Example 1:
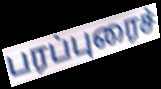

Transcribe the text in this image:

பரப்புரைச்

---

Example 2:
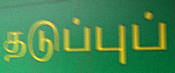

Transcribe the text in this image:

தடுப்புப்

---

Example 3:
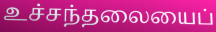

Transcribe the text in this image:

உச்சந்தலையைப்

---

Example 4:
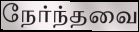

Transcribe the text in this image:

நேர்ந்தவை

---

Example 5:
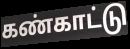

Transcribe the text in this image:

கண்காட்டு